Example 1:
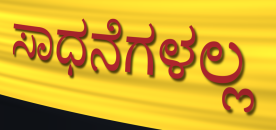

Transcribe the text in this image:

ಸಾಧನೆಗಳಲ್ಲ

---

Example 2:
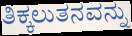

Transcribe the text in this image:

ತಿಕ್ಕಲುತನವನ್ನು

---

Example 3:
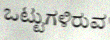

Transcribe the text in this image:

ಒಟ್ಟುಗಳಿರುವ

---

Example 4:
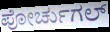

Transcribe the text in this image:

ಪೋರ್ಚುಗಲ್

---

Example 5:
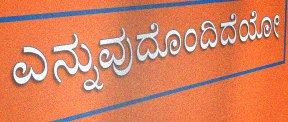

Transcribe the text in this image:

ಎನ್ನುವುದೊಂದಿದೆಯೋ